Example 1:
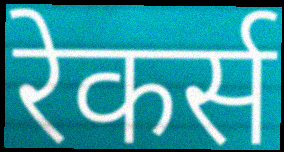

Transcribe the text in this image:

रेकर्स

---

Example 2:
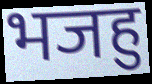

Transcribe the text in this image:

भजहु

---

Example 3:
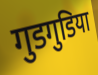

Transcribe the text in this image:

गुडगुडिया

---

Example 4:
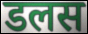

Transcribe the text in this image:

डलस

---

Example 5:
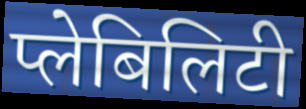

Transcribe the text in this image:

प्लेबिलिटी